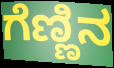
ಗೆಣ್ಣಿನ